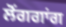
ਲੋਂਗਗਾਂਗ